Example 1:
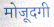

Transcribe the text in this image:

मोजूदगी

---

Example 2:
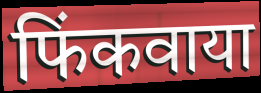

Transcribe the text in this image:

फिंकवाया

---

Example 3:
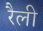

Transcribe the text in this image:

रैली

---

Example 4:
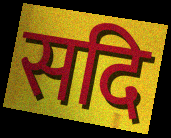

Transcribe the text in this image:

सदि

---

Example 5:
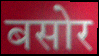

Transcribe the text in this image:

बसोर